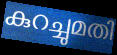
കുറച്ചുമതി